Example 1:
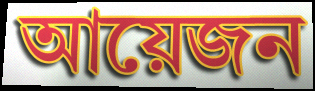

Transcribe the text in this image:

আয়েজন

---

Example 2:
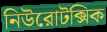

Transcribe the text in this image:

নিউরোটক্সিক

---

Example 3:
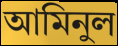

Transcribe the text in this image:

আমিনুল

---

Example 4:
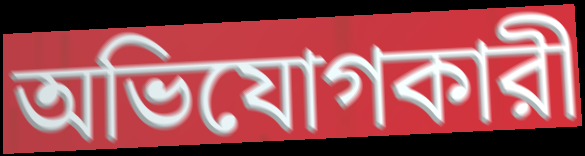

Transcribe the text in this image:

অভিযোগকারী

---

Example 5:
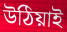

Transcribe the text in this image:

উঠিয়াই